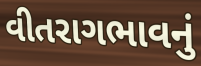
વીતરાગભાવનું